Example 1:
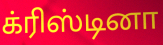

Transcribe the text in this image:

க்ரிஸ்டினா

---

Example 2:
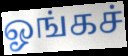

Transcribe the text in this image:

ஓங்கச்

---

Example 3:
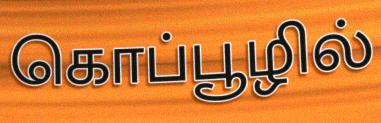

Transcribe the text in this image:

கொப்பூழில்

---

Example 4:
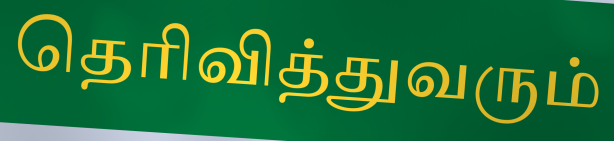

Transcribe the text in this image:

தெரிவித்துவரும்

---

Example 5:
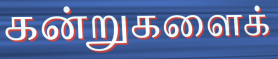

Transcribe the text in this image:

கன்றுகளைக்